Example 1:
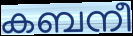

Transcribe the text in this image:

കബനീ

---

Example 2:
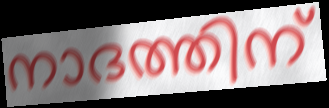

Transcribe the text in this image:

നാദത്തിന്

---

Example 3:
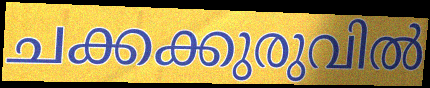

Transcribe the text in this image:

ചക്കക്കുരുവിൽ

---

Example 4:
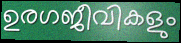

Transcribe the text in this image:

ഉരഗജീവികളും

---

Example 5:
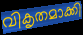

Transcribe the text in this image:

വികൃതമാക്കി